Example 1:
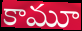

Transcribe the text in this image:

కామూ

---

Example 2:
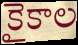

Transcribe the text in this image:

కైకాల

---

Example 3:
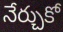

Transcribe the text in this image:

నేర్చుకో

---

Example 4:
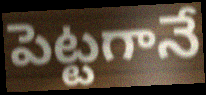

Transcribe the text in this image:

పెట్టగానే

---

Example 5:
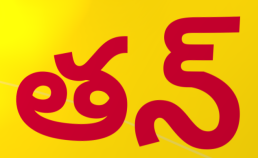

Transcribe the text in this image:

తన్